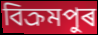
বিক্ৰমপুৰ